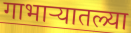
गाभाऱ्यातल्या